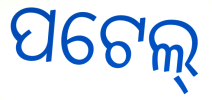
ପଟେଲ୍